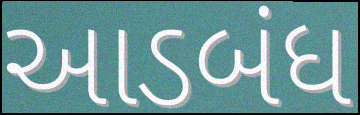
આડબંધ